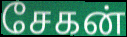
சேகன்